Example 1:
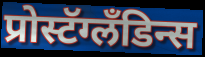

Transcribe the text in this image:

प्रोस्टॅग्लॅंडिन्स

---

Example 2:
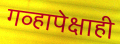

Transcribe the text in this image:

गव्हापेक्षाही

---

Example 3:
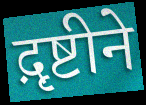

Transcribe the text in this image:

द़ृष्टीने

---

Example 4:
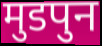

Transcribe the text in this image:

मुडपुन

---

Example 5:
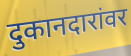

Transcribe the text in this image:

दुकानदारांवर